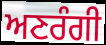
ਅਣਰੰਗੀ